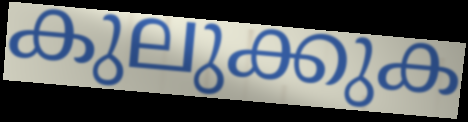
കുലുക്കുക